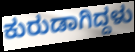
ಕುರುಡಾಗಿದ್ದಳು